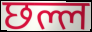
छल्ल